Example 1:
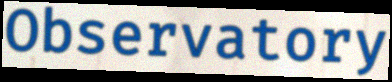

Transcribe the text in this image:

Observatory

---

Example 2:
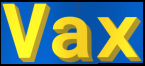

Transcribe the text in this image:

Vax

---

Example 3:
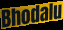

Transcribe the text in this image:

Bhodalu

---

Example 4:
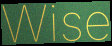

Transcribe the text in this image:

Wise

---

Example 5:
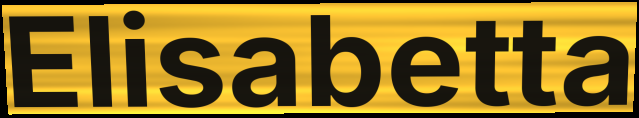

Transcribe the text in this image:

Elisabetta